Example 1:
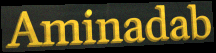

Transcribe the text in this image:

Aminadab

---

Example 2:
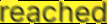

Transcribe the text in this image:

reached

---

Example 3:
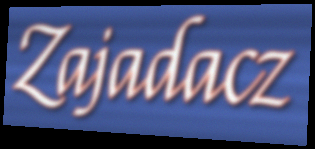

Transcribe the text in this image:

Zajadacz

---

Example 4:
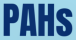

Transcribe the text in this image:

PAHs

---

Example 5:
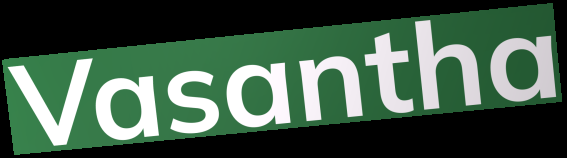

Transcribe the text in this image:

Vasantha